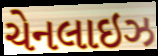
ચેનલાઇઝ